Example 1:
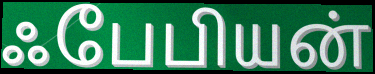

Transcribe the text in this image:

ஃபேபியன்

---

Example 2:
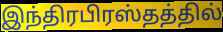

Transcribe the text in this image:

இந்திரபிரஸ்தத்தில்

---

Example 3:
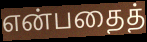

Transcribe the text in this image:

என்பதைத்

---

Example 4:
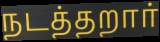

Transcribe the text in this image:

நடத்தறார்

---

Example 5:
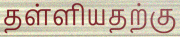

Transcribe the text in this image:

தள்ளியதற்கு